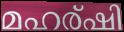
മഹര്ഷി